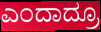
ಎಂದಾದ್ರೂ